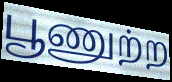
பூணுற்ற